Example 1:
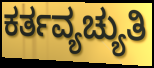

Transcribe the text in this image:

ಕರ್ತವ್ಯಚ್ಯುತಿ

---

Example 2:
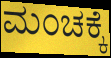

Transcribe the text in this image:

ಮಂಚಕ್ಕೆ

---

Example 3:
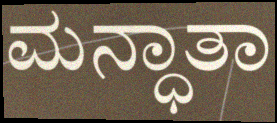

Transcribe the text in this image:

ಮನ್ಧಾತಾ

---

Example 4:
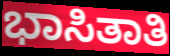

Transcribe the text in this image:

ಭಾಸಿತಾತಿ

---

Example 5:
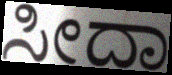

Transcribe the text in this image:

ಸೀದಾ